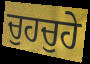
ਚੁਹਚੁਹੇ